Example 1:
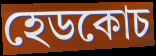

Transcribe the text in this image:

হেডকোচ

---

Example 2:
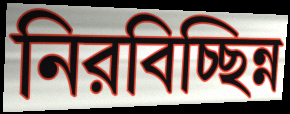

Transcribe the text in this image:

নিরবিচ্ছিন্ন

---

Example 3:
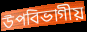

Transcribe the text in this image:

উপবিভাগীয়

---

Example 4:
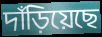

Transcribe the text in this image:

দাঁড়িয়েছে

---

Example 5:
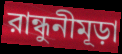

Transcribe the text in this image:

রান্ধুনীমূড়া